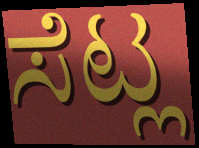
ಸೆಟ್ಲ